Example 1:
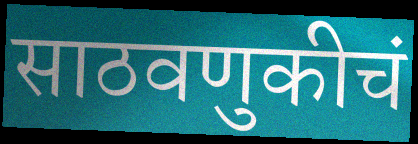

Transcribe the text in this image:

साठवणुकीचं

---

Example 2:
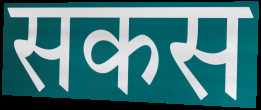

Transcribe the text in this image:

सकस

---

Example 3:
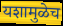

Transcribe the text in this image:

यशामुळेच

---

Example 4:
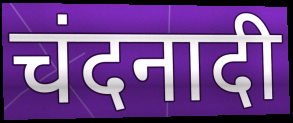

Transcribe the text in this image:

चंदनादी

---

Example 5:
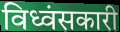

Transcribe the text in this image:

विध्वंसकारी